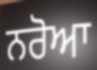
ਨਰੋਆ